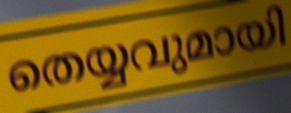
തെയ്യവുമായി